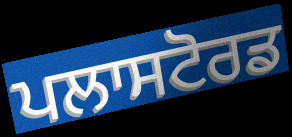
ਪਲਾਸਟੋਰਡ